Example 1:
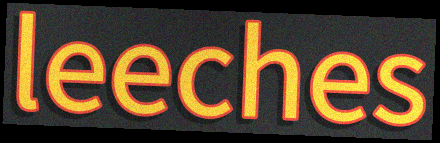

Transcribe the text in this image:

leeches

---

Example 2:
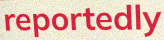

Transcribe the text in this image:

reportedly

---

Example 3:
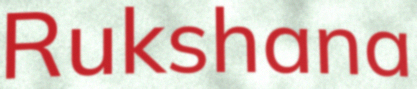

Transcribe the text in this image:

Rukshana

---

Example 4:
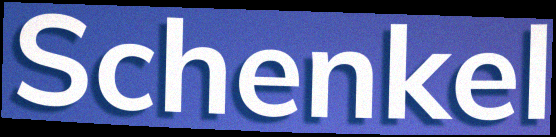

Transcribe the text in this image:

Schenkel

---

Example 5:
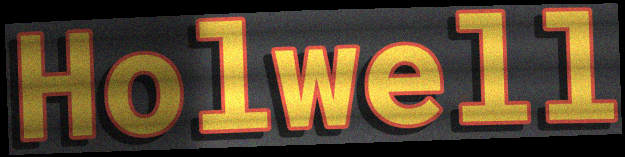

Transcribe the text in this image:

Holwell